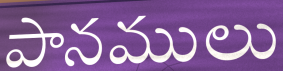
పానములు